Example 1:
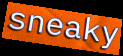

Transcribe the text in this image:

sneaky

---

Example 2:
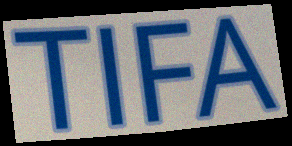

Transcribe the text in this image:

TIFA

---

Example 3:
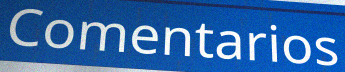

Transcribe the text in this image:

Comentarios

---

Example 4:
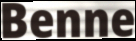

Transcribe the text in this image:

Benne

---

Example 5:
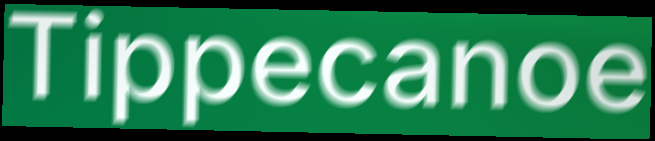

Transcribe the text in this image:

Tippecanoe